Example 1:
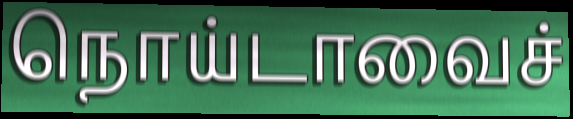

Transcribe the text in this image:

நொய்டாவைச்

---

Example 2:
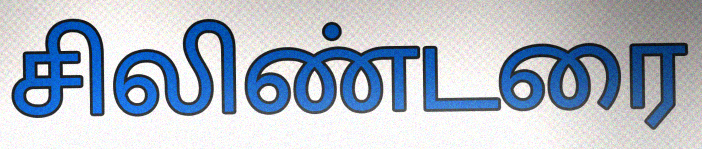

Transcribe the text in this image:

சிலிண்டரை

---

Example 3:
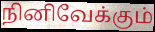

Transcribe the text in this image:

நினிவேக்கும்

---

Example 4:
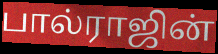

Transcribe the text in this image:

பால்ராஜின்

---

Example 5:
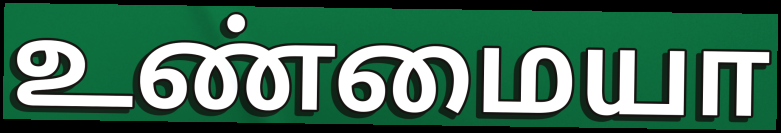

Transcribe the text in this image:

உண்மையா